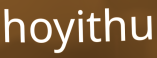
hoyithu